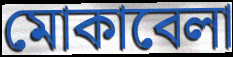
মোকাবেলা